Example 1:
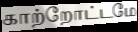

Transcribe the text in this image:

காற்றோட்டமே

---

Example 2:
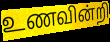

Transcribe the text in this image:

உணவின்றி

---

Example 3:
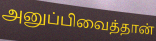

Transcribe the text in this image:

அனுப்பிவைத்தான்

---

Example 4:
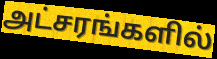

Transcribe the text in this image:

அட்சரங்களில்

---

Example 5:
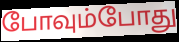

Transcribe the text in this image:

போவும்போது